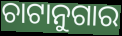
ଚାଟାନୁଗାର